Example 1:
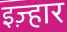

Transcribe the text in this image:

इज़्हार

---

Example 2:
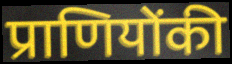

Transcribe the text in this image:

प्राणियोंकी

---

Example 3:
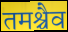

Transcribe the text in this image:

तमश्चैव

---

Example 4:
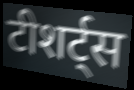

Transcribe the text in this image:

टीशर्ट्स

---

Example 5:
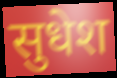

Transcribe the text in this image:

सुधेश